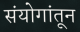
संयोगांतून